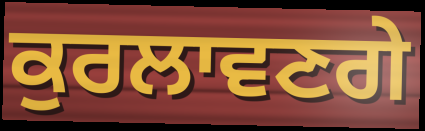
ਕੁਰਲਾਵਣਗੇ